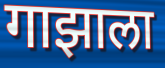
गाझाला